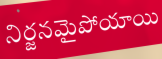
నిర్జనమైపోయాయి